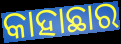
କାହାଛାର